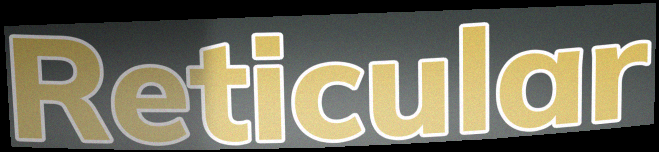
Reticular